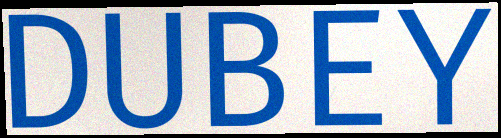
DUBEY